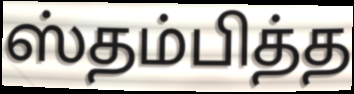
ஸ்தம்பித்த